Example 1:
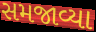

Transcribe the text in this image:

સમજાવ્યા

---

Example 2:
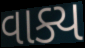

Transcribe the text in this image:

વાક્ય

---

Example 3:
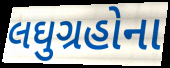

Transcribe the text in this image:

લઘુગ્રહોના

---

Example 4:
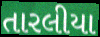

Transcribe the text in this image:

તારલીયા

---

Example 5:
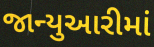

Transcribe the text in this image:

જાન્યુઆરીમાં